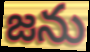
జను